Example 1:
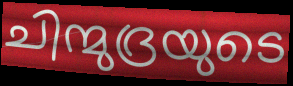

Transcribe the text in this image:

ചിന്മുദ്രയുടെ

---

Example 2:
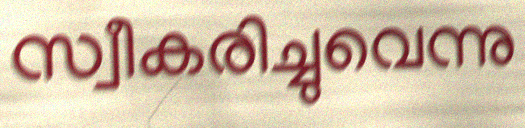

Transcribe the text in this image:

സ്വീകരിച്ചുവെന്നു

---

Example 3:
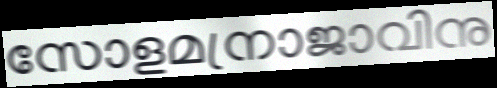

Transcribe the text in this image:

സോളമന്രാജാവിനു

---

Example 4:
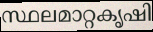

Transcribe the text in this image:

സ്ഥലമാറ്റകൃഷി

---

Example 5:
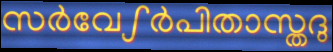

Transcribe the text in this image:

സർവേഽർപിതാസ്തദു